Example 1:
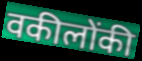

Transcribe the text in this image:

वकीलोंकी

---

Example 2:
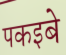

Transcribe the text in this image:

पकइबे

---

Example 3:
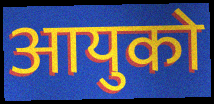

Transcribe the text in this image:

आयुको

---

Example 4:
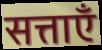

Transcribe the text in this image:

सत्ताएँ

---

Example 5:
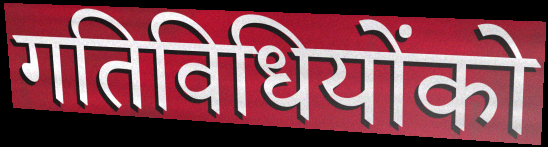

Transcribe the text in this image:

गतिविधियोंको